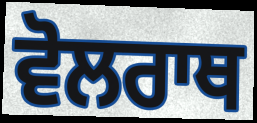
ਵੋਲਰਾਥ